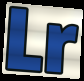
Lr